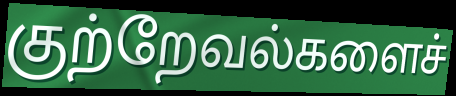
குற்றேவல்களைச்